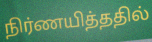
நிர்ணயித்ததில்